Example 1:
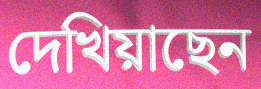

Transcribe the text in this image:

দেখিয়াছেন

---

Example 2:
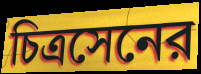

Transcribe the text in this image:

চিত্রসেনের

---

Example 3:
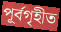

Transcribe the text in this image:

পূর্বগৃহীত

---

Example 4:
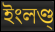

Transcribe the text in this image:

ইংলণ্ড্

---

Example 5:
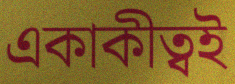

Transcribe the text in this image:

একাকীত্বই